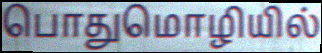
பொதுமொழியில்